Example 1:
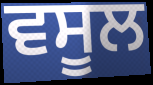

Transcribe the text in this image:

ਵਸੂਲ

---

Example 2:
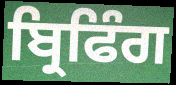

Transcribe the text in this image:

ਬ੍ਰਿਫਿੰਗ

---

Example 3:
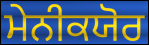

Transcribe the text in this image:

ਮੇਨੀਕਯੋਰ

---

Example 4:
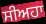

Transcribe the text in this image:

ਸੀਅਹਾ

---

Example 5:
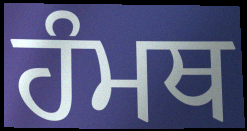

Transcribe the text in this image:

ਹੰਮਥ